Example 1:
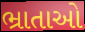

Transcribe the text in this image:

ભ્રાતાઓ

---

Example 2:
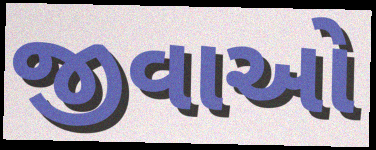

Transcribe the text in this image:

જીવાઓ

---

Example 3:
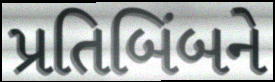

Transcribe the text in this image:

પ્રતિબિંબને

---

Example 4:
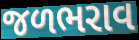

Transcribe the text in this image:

જળભરાવ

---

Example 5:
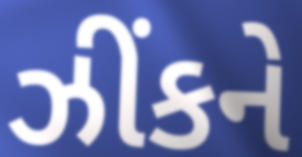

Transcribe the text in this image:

ઝીંકને